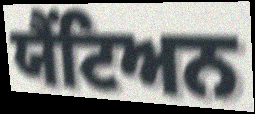
ਯੈਂਟਿਅਨ